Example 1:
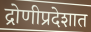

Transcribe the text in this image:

द्रोणीप्रदेशात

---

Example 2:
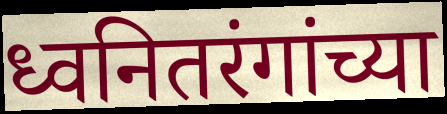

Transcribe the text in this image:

ध्वनितरंगांच्या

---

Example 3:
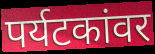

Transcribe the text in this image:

पर्यटकांवर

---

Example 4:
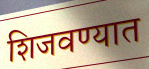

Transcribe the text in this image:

शिजवण्यात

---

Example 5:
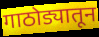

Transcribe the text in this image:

गाठोड्यातून